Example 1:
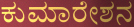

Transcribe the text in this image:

ಕುಮಾರೇಶನ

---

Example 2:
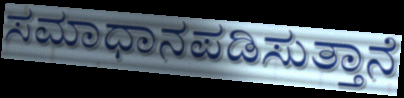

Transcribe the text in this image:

ಸಮಾಧಾನಪಡಿಸುತ್ತಾನೆ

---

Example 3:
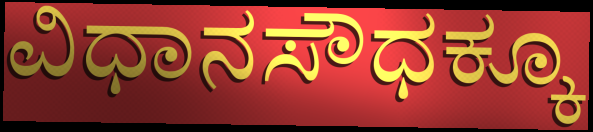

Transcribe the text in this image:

ವಿಧಾನಸೌಧಕ್ಕೂ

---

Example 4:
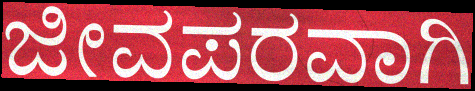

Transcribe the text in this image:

ಜೀವಪರವಾಗಿ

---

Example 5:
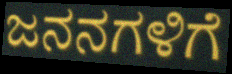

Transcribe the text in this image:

ಜನನಗಳಿಗೆ